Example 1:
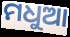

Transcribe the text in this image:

ମଧୁଆ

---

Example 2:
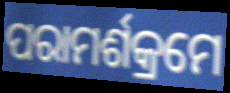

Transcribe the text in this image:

ପରାମର୍ଶକ୍ରମେ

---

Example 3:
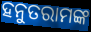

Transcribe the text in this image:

ହନୁତରାମଙ୍କ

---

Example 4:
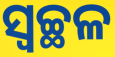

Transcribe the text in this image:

ସ୍ୱଚ୍ଛଳ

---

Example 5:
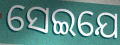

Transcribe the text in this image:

ସେଇଯେ